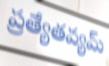
ప్రత్యేతవ్యమ్